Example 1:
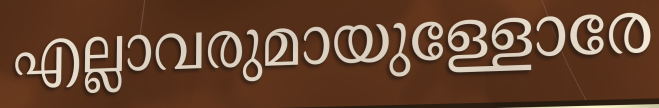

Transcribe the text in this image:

എല്ലാവരുമായുള്ളോരേ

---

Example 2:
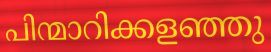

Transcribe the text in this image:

പിന്മാറിക്കളഞ്ഞു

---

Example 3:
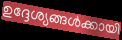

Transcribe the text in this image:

ഉദ്ദേശ്യങ്ങൾക്കായി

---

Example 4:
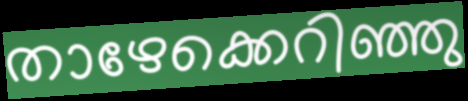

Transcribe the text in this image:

താഴേക്കെറിഞ്ഞു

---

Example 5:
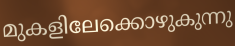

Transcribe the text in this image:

മുകളിലേക്കൊഴുകുന്നു